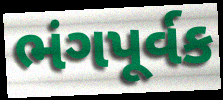
ભંગપૂર્વક